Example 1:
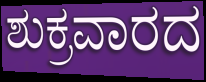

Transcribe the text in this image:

ಶುಕ್ರವಾರದ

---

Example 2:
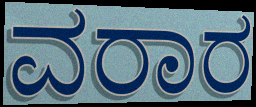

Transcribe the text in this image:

ವರಾರ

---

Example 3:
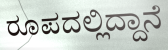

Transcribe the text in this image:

ರೂಪದಲ್ಲಿದ್ದಾನೆ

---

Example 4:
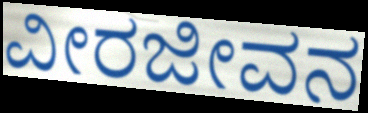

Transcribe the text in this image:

ವೀರಜೀವನ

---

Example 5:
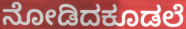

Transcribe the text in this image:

ನೋಡಿದಕೂಡಲೆ